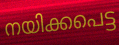
നയിക്കപെട്ട